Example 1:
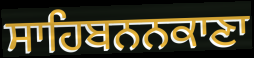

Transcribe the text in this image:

ਸਾਹਿਬਨਨਕਾਣਾ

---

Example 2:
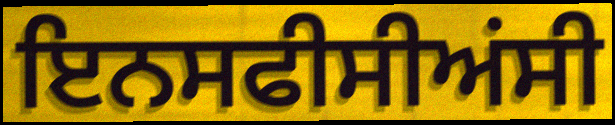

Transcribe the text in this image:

ਇਨਸਫੀਸੀਅਂਸੀ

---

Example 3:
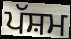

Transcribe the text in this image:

ਪੱਸ਼ਮ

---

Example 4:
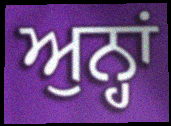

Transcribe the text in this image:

ਅੁਨ੍ਹਾਂ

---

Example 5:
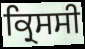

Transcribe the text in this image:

ਕ੍ਰਿਸਸੀ